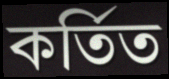
কৰ্তিত